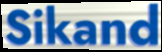
Sikand